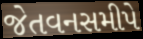
જેતવનસમીપે